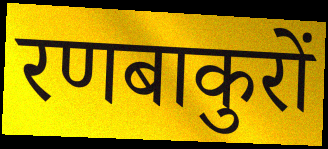
रणबाकुरों